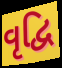
વૃદ્વિ